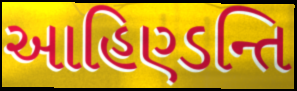
આહિણ્ડન્તિ